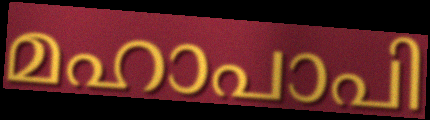
മഹാപാപി